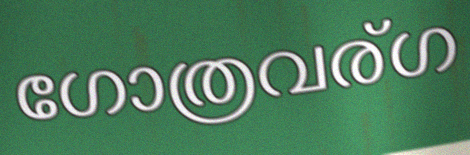
ഗോത്രവര്ഗ